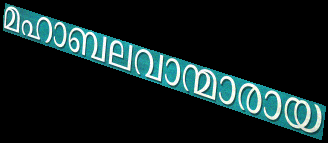
മഹാബലവാന്മാരായ